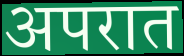
अपरात